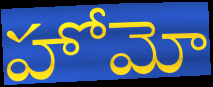
హోమో